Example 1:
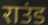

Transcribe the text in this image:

राउंड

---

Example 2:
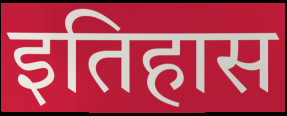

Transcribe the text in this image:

इतिहास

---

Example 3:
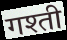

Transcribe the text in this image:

गश्ती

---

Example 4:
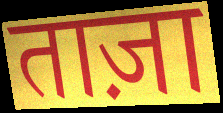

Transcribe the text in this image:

ताज़ा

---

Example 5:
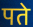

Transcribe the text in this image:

पते